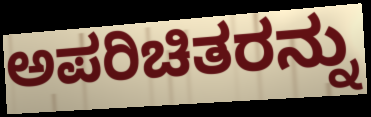
ಅಪರಿಚಿತರನ್ನು